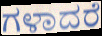
ಗಳಾದರೆ